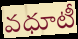
వధూటీ